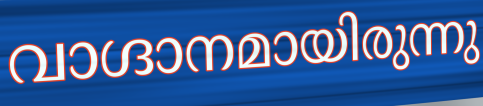
വാഗ്ദാനമായിരുന്നു